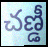
చణ్డీ